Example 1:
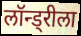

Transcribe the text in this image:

लॉन्ड्रीला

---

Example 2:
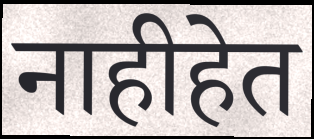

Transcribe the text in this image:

नाहीहेत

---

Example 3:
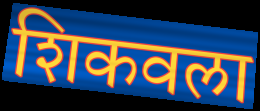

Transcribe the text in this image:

शिकवला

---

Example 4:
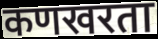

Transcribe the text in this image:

कणखरता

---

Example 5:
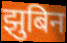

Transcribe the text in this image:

झुबिन